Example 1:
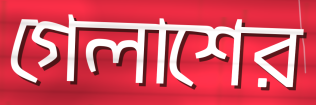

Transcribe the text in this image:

গেলাশের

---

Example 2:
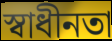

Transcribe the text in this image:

স্বাধীনতা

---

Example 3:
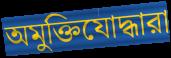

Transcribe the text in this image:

অমুক্তিযোদ্ধারা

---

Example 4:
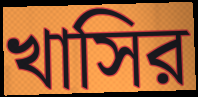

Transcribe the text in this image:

খাসির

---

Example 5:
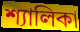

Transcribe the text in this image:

শ্যালিকা